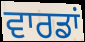
ਵਾਰਡਾਂ